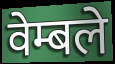
वेम्बले